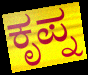
ಕೃಪ್ನ